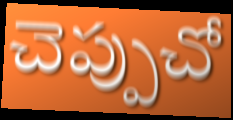
చెప్పుచో